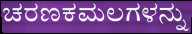
ಚರಣಕಮಲಗಳನ್ನು